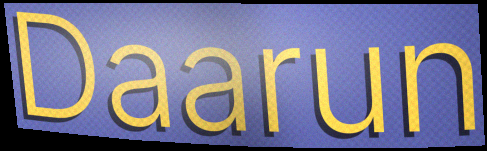
Daarun